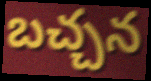
బచ్చన